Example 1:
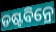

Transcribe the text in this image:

ଡଷ୍ଟବିନ୍ରେ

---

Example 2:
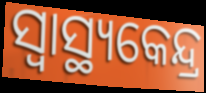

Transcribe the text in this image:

ସ୍ୱାସ୍ଥ୍ୟକେନ୍ଦ୍ର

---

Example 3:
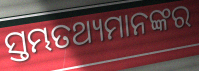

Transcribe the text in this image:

ସ୍ତମ୍ଭତଥ୍ୟମାନଙ୍କର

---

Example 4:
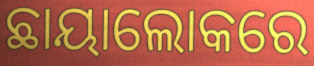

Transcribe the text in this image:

ଛାୟାଲୋକରେ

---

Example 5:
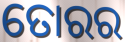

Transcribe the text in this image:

ତୋରର